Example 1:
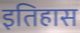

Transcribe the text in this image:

इतिहास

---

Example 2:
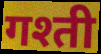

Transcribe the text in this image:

गश्ती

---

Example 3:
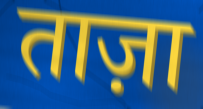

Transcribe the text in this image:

ताज़ा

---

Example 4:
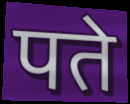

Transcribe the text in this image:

पते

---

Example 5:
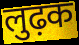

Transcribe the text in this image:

लुढ़क